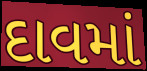
દાવમાં